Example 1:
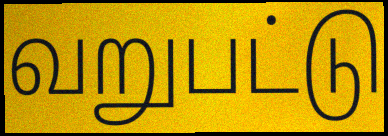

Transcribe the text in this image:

வறுபட்டு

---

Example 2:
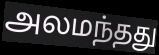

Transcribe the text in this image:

அலமந்தது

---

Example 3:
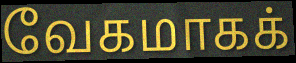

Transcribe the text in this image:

வேகமாகக்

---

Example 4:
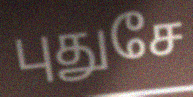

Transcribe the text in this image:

புதுசே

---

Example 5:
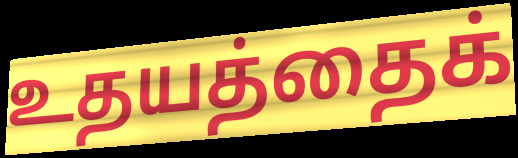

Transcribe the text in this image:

உதயத்தைக்